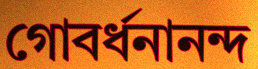
গোবর্ধনানন্দ